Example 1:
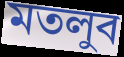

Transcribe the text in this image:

মতলুব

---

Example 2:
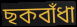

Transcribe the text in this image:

ছকবাঁধা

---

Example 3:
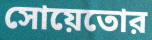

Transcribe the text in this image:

সোয়েতোর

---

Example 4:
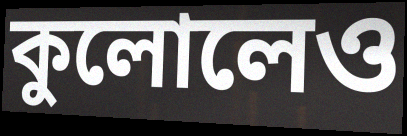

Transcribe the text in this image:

কুলোলেও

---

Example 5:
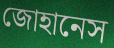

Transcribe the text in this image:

জোহানেস